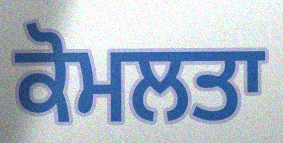
ਕੋਮਲਤਾ